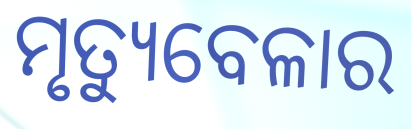
ମୃତ୍ୟୁବେଳାର